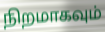
நிறமாகவும்